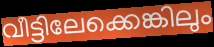
വീട്ടിലേക്കെങ്കിലും